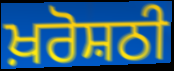
ਖ਼ਰੋਸ਼ਠੀ